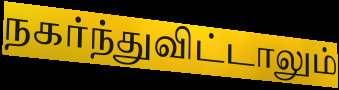
நகர்ந்துவிட்டாலும்